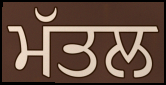
ਮੱਤਲ